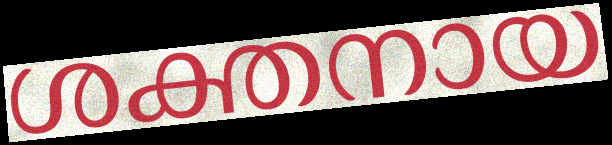
ശക്തനായ